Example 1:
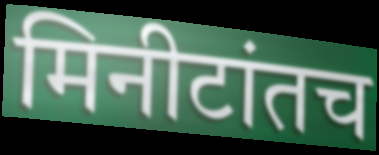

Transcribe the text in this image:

मिनीटांतच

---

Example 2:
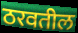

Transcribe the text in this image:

ठरवतील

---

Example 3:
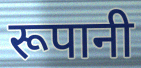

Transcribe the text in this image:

रूपानी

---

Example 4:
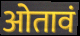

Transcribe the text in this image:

ओतावं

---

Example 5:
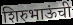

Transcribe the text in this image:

शिरुभाऊंची